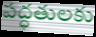
పద్ధతులకు